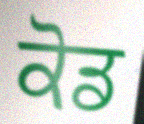
ਕੋਡ